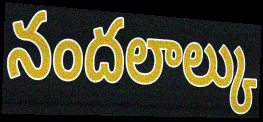
నందలాల్కు